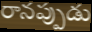
రానప్పుడు